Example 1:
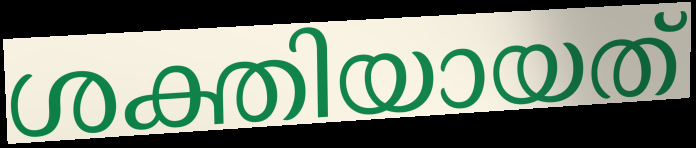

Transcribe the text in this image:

ശക്തിയായത്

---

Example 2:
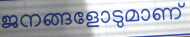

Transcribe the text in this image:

ജനങ്ങളോടുമാണ്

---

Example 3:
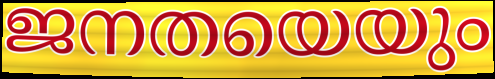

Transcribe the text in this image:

ജനതയെയും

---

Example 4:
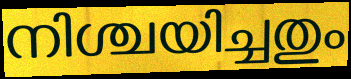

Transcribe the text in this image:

നിശ്ചയിച്ചതും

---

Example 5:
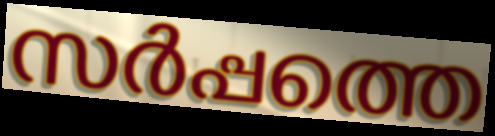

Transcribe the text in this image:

സർപ്പത്തെ